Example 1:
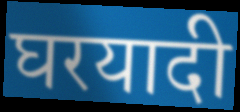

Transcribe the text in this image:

घरयादी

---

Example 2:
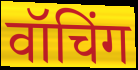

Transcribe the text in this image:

वॉचिंग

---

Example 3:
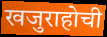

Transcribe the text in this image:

खजुराहोची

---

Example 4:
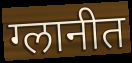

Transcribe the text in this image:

ग्लानीत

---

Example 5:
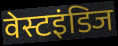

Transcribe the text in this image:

वेस्टइंडिज